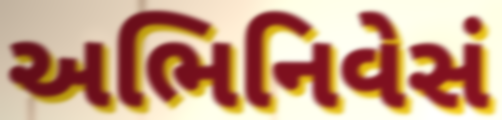
અભિનિવેસં